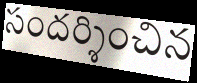
సందర్శించిన